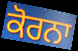
ਕੋਰਨਾ